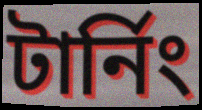
টাৰ্নিং